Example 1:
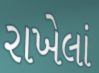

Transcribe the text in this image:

રાખેલાં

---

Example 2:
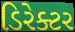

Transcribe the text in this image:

ડિરેક્ટર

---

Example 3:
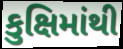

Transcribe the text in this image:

કુક્ષિમાંથી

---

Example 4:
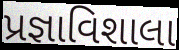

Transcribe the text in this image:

પ્રજ્ઞાવિશાલા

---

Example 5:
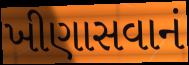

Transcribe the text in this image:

ખીણાસવાનં